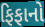
ફિફાનો